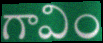
గావిం